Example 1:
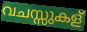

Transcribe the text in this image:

വചസ്സുകള്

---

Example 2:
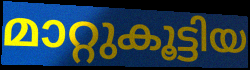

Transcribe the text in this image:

മാറ്റുകൂട്ടിയ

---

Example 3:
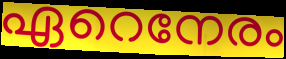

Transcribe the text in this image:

ഏറെനേരം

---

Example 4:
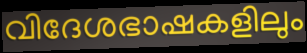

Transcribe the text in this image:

വിദേശഭാഷകളിലും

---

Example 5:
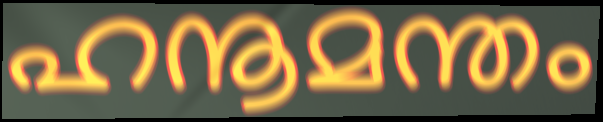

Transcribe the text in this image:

ഹനൂമന്തം